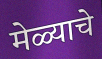
मेळ्याचे